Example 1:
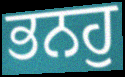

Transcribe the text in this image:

ਭਨਹੁ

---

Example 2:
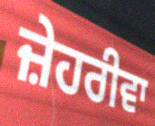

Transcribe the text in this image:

ਜ਼ੇਹਰੀਵਾ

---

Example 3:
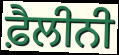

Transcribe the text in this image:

ਫ਼ੈਲੀਨੀ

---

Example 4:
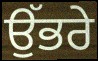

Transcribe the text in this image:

ਉੱਭਰੇ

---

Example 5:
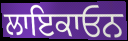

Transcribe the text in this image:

ਲਾਇਕਾਓਨ